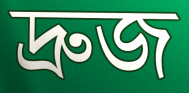
দ্রুজ